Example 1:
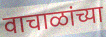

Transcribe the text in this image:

वाचाळांच्या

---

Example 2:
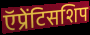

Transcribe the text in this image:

ऍप्रेंटिसशिप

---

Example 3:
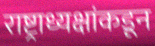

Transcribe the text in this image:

राष्ट्राध्यक्षांकडून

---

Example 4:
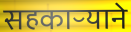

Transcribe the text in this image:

सहकाऱ्याने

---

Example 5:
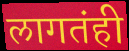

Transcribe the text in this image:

लागतंही